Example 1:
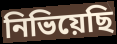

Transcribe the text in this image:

নিভিয়েছি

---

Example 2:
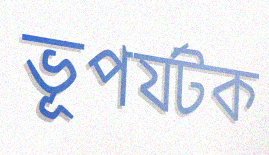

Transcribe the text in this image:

ভূপর্যটক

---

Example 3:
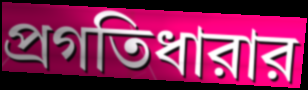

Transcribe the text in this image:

প্রগতিধারার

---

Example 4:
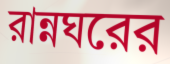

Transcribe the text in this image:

রান্নঘরের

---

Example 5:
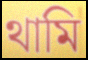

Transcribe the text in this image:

থামি